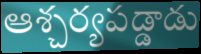
ఆశ్చర్యపడ్డాడు